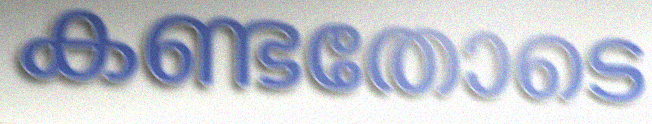
കണ്ടതോടെ